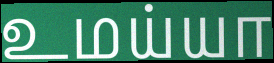
உமய்யா